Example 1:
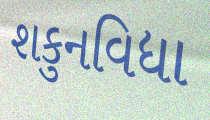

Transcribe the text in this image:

શકુનવિદ્યા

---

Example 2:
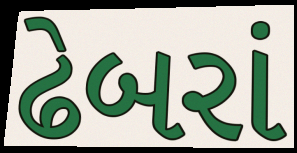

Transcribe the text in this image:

ઢેબરાં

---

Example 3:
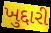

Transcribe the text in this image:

ખુદ્દારી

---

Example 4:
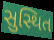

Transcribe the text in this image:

સુસ્થિત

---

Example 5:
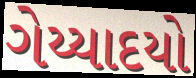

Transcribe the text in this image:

ગેય્યાદયો